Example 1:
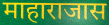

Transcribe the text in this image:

माहाराजास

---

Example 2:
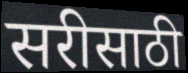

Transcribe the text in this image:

सरीसाठी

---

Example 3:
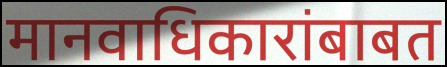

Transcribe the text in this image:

मानवाधिकारांबाबत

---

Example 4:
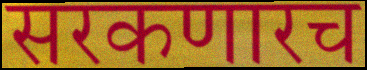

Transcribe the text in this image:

सरकणारच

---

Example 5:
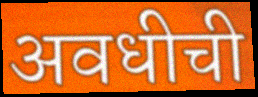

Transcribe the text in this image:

अवधीची